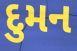
દુમન